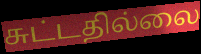
சுட்டதில்லை